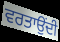
ਵਰਤਾਉਂਦੀ